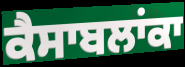
ਕੈਸਾਬਲਾਂਕਾ